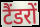
टैंडरों